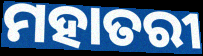
ମହାତରୀ